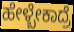
ಹೇಳ್ಬೇಕಾದ್ರೆ